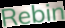
Rebin